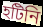
হটিনি